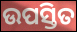
ଉପସ୍ତିତ